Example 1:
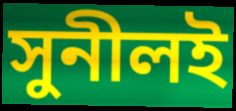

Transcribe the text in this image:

সুনীলই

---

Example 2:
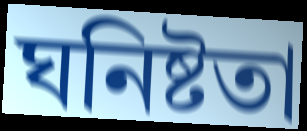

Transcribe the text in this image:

ঘনিষ্টতা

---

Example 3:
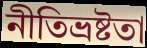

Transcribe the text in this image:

নীতিভ্রষ্টতা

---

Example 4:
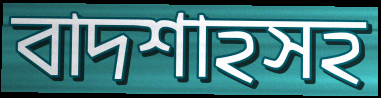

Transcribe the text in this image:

বাদশাহসহ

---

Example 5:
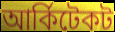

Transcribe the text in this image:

আর্কিটেকট